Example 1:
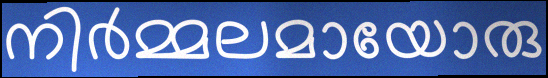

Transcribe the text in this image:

നിർമ്മലമായോരു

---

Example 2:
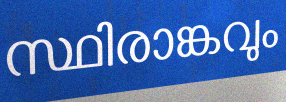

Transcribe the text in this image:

സ്ഥിരാങ്കവും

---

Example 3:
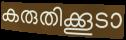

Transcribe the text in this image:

കരുതിക്കൂടാ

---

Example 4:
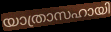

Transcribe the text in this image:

യാത്രാസഹായി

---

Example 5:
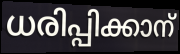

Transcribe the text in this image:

ധരിപ്പിക്കാന്